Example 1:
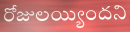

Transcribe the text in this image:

రోజులయ్యిందని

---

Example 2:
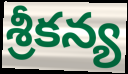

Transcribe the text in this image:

శ్రీకన్య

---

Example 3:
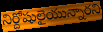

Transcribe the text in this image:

నిర్దోషులైయున్నారని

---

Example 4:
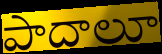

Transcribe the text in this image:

పాదాలూ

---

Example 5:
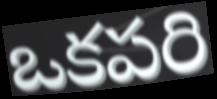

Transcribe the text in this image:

ఒకపరి